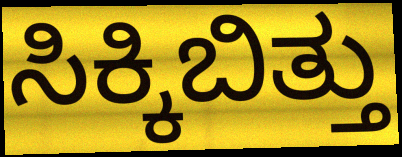
ಸಿಕ್ಕಿಬಿತ್ತು